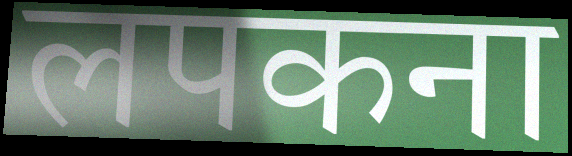
लपकना